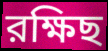
রক্ষিছ